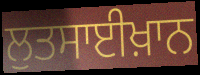
ਲੁਤਸਾਈਖ਼ਾਨ